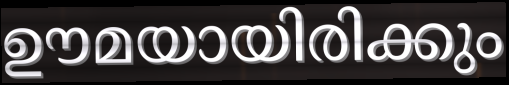
ഊമയായിരിക്കും